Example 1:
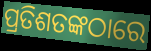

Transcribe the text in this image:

ପ୍ରତିଶତଙ୍କଠାରେ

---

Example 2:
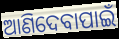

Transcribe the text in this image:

ଆଣିଦେବାପାଇଁ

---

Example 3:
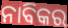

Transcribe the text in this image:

ନାବିକର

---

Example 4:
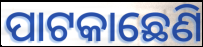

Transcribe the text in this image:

ପାଟକାଛେଣି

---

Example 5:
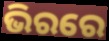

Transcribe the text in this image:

ଭିରରେ